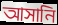
আসানি